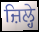
ਜ਼ਿਲ੍ਹੇ